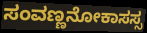
ಸಂವಣ್ಣನೋಕಾಸಸ್ಸ